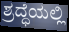
ಶ್ರದ್ಧೆಯಲ್ಲಿ